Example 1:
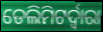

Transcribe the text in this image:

ଡେଲିମିଟର୍ଦ୍ୱାରା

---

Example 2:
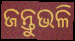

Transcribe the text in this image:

ଜନ୍ତୁଭଳି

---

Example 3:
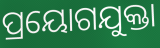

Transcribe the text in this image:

ପ୍ରୟୋଗଯୁକ୍ତା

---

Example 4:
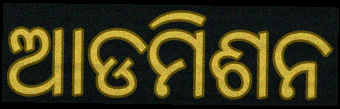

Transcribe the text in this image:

ଆଡମିଶନ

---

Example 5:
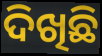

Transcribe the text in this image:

ଦିଖିଛି